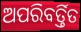
ଅପରିବର୍ତ୍ତିତ